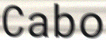
Cabo